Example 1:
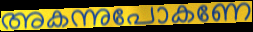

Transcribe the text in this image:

അകന്നുപോകണേ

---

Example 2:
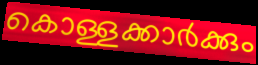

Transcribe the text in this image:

കൊള്ളക്കാർക്കും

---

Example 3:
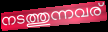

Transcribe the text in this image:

നടത്തുന്നവര്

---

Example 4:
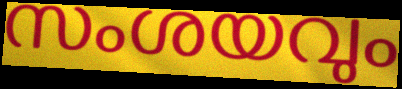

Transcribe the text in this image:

സംശയവും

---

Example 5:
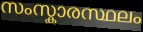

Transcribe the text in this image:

സംസ്കാരസ്ഥലം